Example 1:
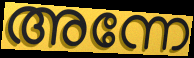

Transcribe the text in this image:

അന്നേ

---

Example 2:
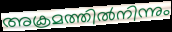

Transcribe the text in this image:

അക്രമത്തിൽനിന്നും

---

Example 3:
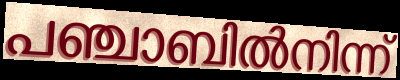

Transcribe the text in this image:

പഞ്ചാബിൽനിന്ന്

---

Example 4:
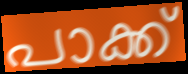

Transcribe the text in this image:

പാക്ക്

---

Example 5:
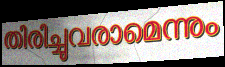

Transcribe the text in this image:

തിരിച്ചുവരാമെന്നും